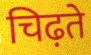
चिढ़ते